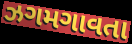
ઝગમગાવતા